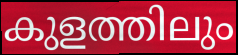
കുളത്തിലും